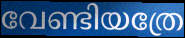
വേണ്ടിയത്രേ